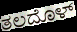
ತಲದೊಳ್